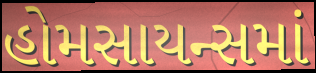
હોમસાયન્સમાં